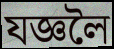
যজ্ঞলৈ